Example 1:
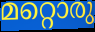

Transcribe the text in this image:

മറ്റൊരു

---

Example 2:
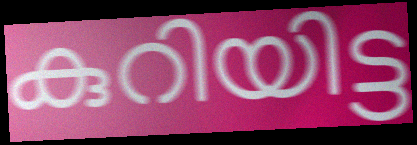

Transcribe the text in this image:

കുറിയിട്ട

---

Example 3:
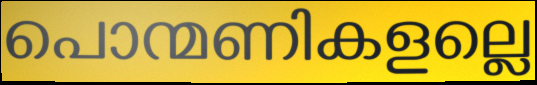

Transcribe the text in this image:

പൊന്മണികളല്ലെ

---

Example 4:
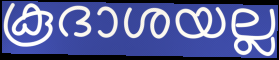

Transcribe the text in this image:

കൂദാശയല്ല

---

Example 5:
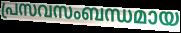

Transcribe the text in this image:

പ്രസവസംബന്ധമായ